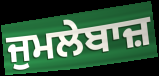
ਜੁਮਲੇਬਾਜ਼